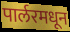
पार्लरमधून